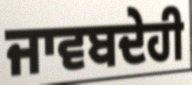
ਜਾਵਬਦੇਹੀ